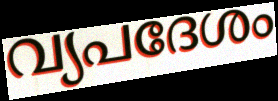
വ്യപദേശം